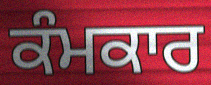
ਕੰਮਕਾਰ